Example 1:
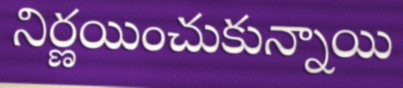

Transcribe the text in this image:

నిర్ణయించుకున్నాయి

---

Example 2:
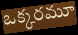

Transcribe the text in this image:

ఒక్కరమూ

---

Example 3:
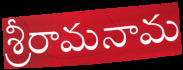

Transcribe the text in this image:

శ్రీరామనామ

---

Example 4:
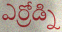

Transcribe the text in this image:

ఎర్రోడ్ని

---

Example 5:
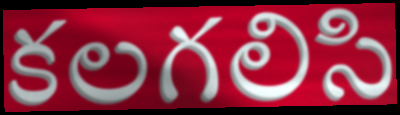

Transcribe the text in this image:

కలగలిసి